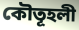
কৌতূহলী